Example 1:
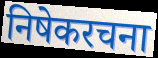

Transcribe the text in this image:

निषेकरचना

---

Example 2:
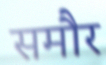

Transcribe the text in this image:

समौर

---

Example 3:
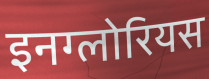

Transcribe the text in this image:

इनग्लोरियस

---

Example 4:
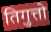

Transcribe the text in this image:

तिगुत्तो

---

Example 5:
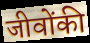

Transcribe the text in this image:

जीवोंकी